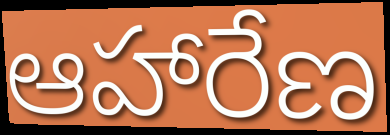
ఆహారేణ